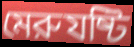
মেরুযষ্টি